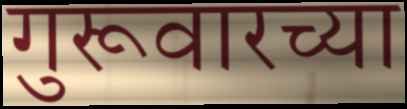
गुरूवारच्या